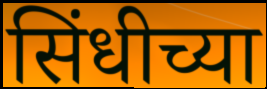
सिंधीच्या